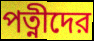
পত্নীদের